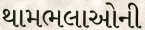
થામભલાઓની